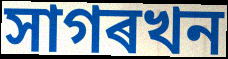
সাগৰখন